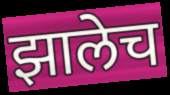
झालेच